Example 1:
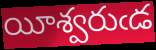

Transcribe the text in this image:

యీశ్వరుఁడ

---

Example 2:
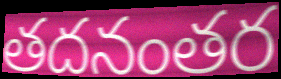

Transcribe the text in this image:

తదనంతర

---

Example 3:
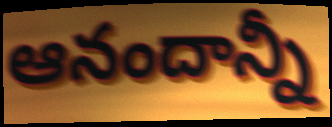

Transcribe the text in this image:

ఆనందాన్నీ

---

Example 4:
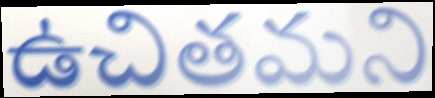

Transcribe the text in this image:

ఉచితమని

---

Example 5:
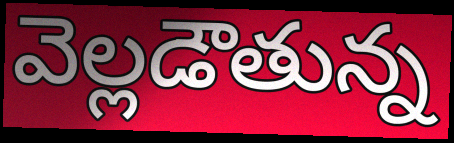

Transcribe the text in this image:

వెల్లడౌతున్న